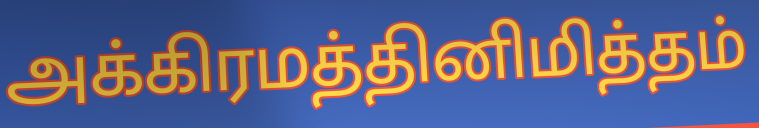
அக்கிரமத்தினிமித்தம்